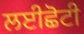
ਲਈਛੋਟੀ